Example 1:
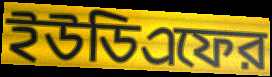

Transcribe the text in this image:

ইউডিএফের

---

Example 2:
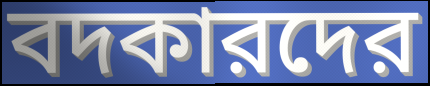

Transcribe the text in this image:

বদকারদের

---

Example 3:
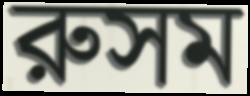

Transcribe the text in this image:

রুসম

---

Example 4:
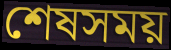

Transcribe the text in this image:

শেষসময়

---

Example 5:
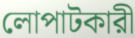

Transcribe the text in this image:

লোপাটকারী